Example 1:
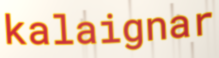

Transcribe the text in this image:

kalaignar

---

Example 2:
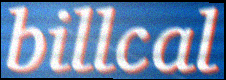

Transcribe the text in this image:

billcal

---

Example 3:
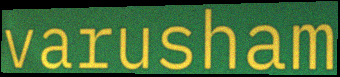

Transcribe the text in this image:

varusham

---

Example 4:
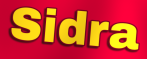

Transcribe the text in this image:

Sidra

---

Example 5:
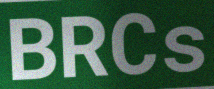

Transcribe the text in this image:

BRCs